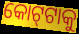
କୋଟ୍‌ଟାକୁ